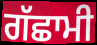
ਗੱਛਾਮੀ